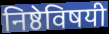
निष्ठेविषयी